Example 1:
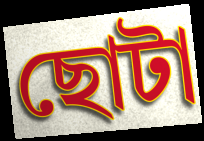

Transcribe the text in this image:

ছোটা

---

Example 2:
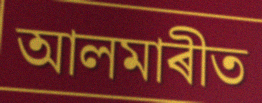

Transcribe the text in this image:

আলমাৰীত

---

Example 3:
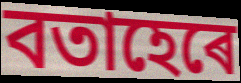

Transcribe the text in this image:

বতাহেৰে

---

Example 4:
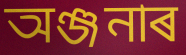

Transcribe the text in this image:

অঞ্জনাৰ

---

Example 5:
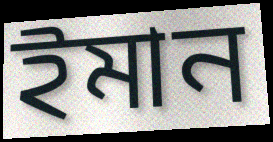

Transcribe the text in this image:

ইমান